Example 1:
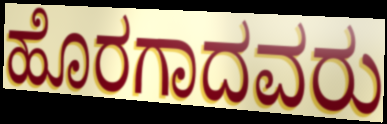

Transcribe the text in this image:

ಹೊರಗಾದವರು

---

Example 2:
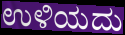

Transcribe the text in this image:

ಉಳಿಯದು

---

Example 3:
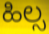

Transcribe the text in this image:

ಹಿಲ್ಸ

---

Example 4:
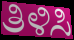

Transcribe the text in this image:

ತಿಳಿಸಿ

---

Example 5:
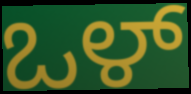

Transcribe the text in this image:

ಒಳ್